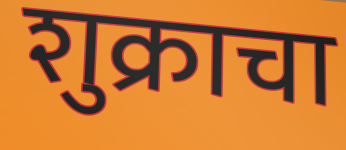
शुक्राचा